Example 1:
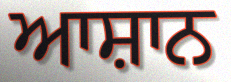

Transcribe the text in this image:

ਆਸ਼ਾਨ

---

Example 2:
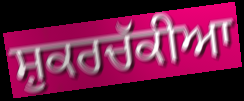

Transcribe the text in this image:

ਸ਼ੁਕਰਚੱਕੀਆ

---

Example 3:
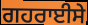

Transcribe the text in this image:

ਗਹਰਾਈਸੇ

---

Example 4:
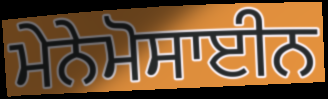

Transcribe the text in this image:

ਮੇਨੇਮੋਸਾਈਨ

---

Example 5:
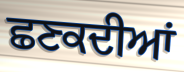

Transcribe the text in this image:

ਛਣਕਦੀਆਂ